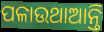
ପଳାଉଥାଆନ୍ତି